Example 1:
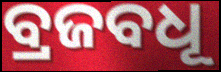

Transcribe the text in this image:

ବ୍ରଜବଧୂ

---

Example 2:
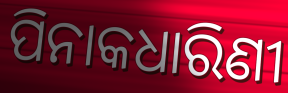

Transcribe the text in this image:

ପିନାକଧାରିଣୀ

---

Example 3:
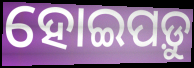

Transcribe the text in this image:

ହୋଇପଡ଼ୁ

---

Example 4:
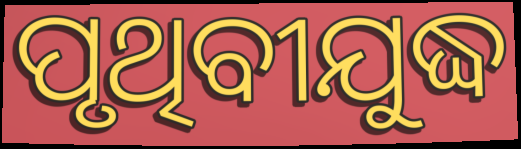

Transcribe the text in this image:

ପୃଥିବୀଯୁଦ୍ଧ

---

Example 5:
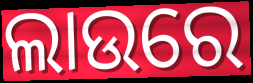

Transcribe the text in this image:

ଲାଉରେ